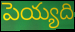
పెయ్యది